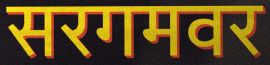
सरगमवर